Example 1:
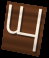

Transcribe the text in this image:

யு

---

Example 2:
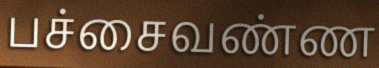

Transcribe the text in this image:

பச்சைவண்ண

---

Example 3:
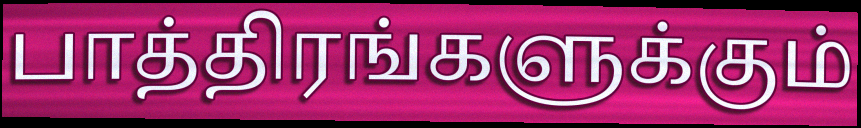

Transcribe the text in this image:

பாத்திரங்களுக்கும்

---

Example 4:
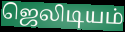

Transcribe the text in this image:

ஜெலிடியம்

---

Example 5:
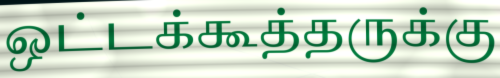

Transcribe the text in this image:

ஒட்டக்கூத்தருக்கு